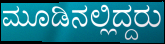
ಮೂಡಿನಲ್ಲಿದ್ದರು